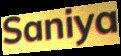
Saniya